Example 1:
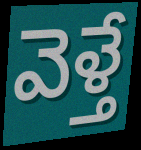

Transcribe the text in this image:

వెళ్తే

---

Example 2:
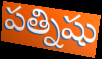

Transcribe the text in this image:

పత్నిషు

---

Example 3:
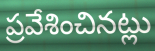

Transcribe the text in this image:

ప్రవేశించినట్లు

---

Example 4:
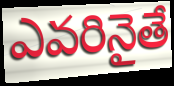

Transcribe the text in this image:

ఎవరినైతే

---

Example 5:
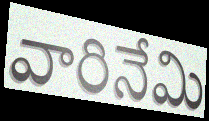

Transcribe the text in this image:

వారినేమి